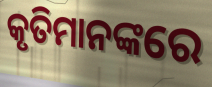
କୃତିମାନଙ୍କରେ